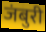
जंबुरी